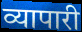
व्‍यापारी